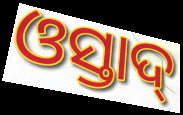
ଓସ୍ତାଦ୍